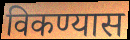
विकण्यास